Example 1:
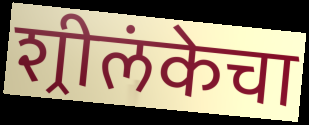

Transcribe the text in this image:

श्रीलंकेचा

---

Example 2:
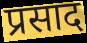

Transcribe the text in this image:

प्रसाद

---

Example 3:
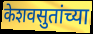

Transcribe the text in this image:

केशवसुतांच्या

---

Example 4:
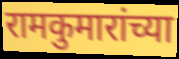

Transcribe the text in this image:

रामकुमारांच्या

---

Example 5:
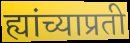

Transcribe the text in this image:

ह्यांच्याप्रती